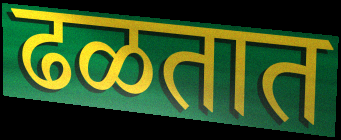
ढळतात